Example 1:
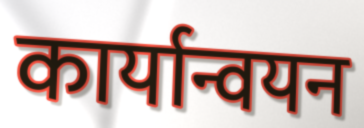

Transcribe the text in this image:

कार्यान्वयन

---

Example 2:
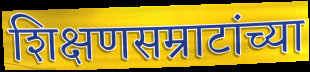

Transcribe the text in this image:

शिक्षणसम्राटांच्या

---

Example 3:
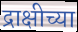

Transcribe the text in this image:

द्राक्षीच्या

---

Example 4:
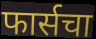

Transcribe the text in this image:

फार्सचा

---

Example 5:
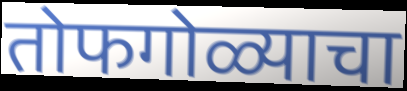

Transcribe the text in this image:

तोफगोळ्याचा